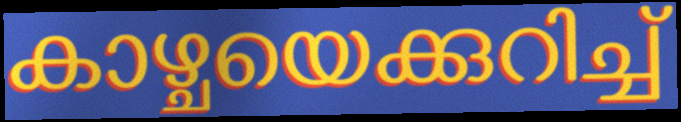
കാഴ്ചയെക്കുറിച്ച്